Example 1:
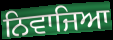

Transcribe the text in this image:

ਨਿਵਾਜਿਆ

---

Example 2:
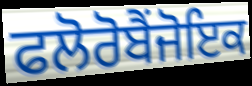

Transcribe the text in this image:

ਫਲੋਰੋਬੈਂਜੋਇਕ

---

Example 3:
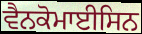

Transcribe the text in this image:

ਵੈਨਕੋਮਾਈਸਿਨ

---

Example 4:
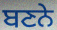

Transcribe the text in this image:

ਬਣਨੇ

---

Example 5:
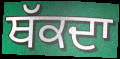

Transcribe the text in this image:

ਥੱਕਦਾ